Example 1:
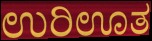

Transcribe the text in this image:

ಉರಿಊತ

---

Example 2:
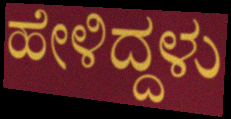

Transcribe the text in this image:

ಹೇಳಿದ್ದಳು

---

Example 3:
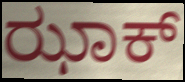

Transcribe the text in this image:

ಝಾಕ್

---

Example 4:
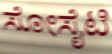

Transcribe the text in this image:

ಸೋಸೈಟಿ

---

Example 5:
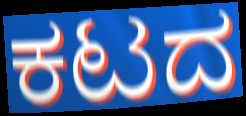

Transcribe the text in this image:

ಕಟದ